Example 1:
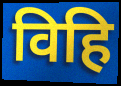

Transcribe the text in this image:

विहि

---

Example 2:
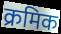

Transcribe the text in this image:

क्रमिक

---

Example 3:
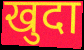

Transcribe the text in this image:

खुदा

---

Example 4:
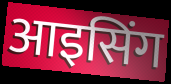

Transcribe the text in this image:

आइसिंग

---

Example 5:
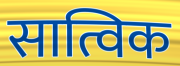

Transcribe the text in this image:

सात्विक